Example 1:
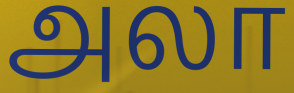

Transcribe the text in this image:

அலா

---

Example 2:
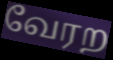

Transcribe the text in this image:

வேரற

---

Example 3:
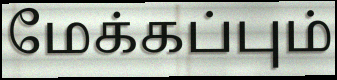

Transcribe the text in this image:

மேக்கப்பும்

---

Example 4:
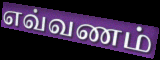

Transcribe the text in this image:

எவ்வணம்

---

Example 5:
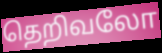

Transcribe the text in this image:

தெறிவலோ